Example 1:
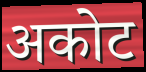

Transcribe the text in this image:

अकोट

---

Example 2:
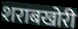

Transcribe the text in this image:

शराबखोरी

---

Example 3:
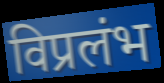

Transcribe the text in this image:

विप्रलंभ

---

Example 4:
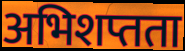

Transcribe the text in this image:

अभिशप्तता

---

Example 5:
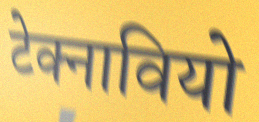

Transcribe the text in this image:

टेक्नावियो